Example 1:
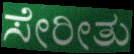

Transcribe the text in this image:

ಸೇರೀತು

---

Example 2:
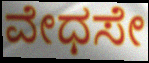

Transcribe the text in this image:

ವೇಧಸೇ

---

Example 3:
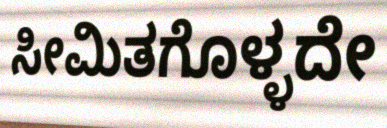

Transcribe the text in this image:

ಸೀಮಿತಗೊಳ್ಳದೇ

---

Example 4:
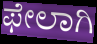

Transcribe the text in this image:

ಫೇಲಾಗಿ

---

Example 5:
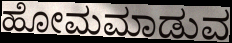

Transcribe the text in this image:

ಹೋಮಮಾಡುವ